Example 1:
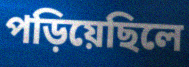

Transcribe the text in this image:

পড়িয়েছিলে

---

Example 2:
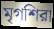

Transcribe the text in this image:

মৃগশিরা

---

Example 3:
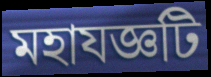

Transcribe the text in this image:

মহাযজ্ঞটি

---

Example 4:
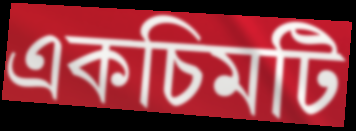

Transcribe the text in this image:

একচিমটি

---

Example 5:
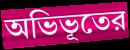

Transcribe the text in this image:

অভিভূতের